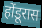
होंडूरास